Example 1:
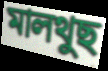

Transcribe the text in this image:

মালথুছ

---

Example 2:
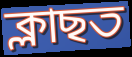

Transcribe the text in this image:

ক্লাছত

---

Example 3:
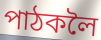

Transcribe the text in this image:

পাঠকলৈ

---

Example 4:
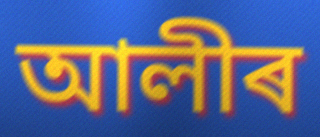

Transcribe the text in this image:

আলীৰ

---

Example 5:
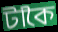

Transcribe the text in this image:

টাকৈ